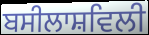
ਬਸੀਲਾਸ਼ਵਿਲੀ